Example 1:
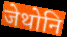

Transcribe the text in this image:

जेथोनि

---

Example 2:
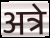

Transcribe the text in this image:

अत्रे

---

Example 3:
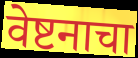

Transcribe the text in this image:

वेष्टनाचा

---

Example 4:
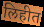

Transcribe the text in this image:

लिहीत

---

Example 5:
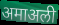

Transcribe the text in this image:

अमाअली